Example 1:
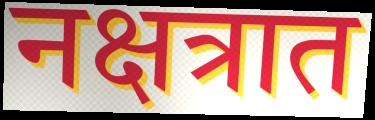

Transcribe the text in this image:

नक्षत्रात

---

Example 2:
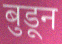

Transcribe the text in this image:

बुडून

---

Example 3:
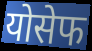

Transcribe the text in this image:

योसेफ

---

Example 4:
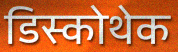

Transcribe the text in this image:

डिस्कोथेक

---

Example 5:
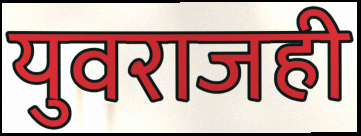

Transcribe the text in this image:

युवराजही